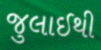
જુલાઈથી